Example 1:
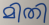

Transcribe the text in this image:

മിതി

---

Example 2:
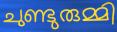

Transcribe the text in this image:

ചുണ്ടുരുമ്മി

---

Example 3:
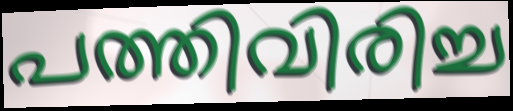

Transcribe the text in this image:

പത്തിവിരിച്ച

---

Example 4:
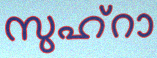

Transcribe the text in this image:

സുഹ്റാ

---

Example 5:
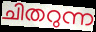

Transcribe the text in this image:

ചിതറുന്ന